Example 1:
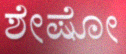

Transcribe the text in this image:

ಶೇಷೋ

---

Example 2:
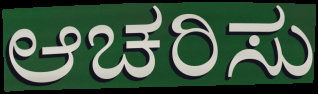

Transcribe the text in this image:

ಆಚರಿಸು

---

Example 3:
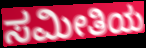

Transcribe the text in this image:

ಸಮೀತಿಯ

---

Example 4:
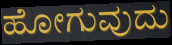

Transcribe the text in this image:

ಹೋಗುವುದು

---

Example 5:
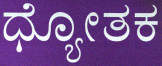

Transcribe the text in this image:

ಧ್ಯೋತಕ